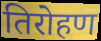
तिरोहण